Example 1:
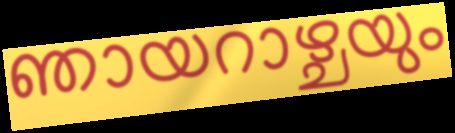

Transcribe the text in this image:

ഞായറാഴ്ചയും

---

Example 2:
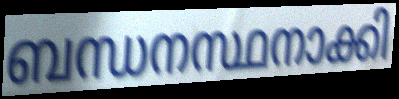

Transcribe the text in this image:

ബന്ധനസ്ഥനാക്കി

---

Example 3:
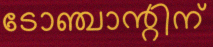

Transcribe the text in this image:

ടോഞ്ചാന്റിന്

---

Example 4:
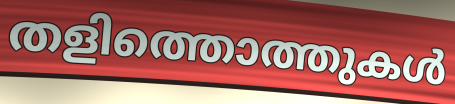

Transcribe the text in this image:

തളിത്തൊത്തുകൾ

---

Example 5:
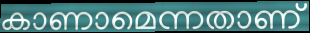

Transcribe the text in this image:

കാണാമെന്നതാണ്